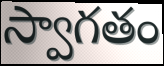
స్వాగతం